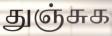
துஞ்சுக